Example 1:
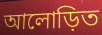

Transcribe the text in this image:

আলোড়িত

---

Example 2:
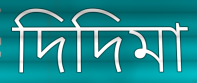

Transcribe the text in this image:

দিদিমা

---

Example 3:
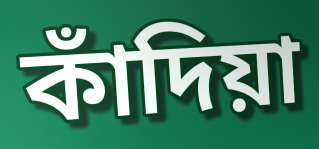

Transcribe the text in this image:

কাঁদিয়া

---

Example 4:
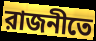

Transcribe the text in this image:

রাজনীতে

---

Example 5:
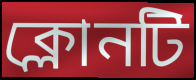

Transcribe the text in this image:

ক্লোনটি